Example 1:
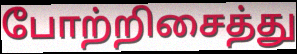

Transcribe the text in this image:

போற்றிசைத்து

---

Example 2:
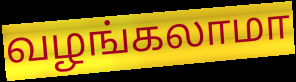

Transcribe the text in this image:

வழங்கலாமா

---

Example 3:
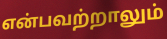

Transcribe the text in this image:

என்பவற்றாலும்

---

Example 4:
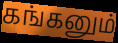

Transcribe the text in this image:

கங்கனும்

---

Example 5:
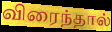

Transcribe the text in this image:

விரைந்தால்